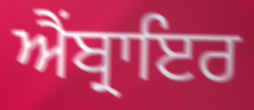
ਐਂਬ੍ਰਾਇਰ